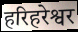
हरिहरेश्वर